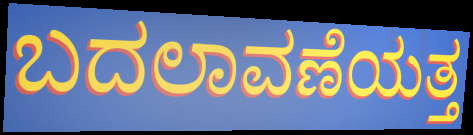
ಬದಲಾವಣೆಯತ್ತ